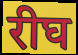
रीघ